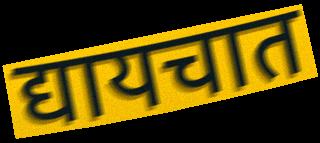
द्यायचात